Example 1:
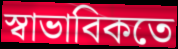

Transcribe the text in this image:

স্বাভাবিকতে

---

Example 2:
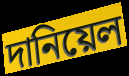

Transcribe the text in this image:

দানিয়েল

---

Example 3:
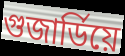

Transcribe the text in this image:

গুজাৰ্ডিয়ে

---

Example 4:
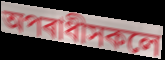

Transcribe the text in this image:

অপৰাধীসকলে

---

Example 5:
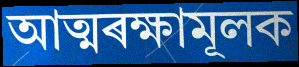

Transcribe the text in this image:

আত্মৰক্ষামূলক